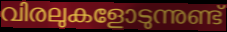
വിരലുകളോടുന്നുണ്ട്